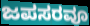
ಜಪಸರವೂ